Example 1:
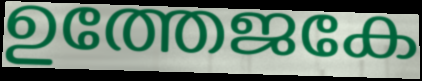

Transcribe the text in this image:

ഉത്തേജകേ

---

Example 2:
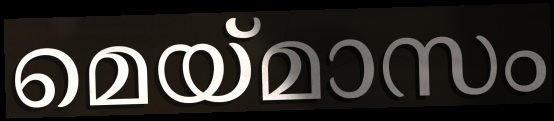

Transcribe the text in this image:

മെയ്മാസം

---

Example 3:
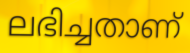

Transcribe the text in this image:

ലഭിച്ചതാണ്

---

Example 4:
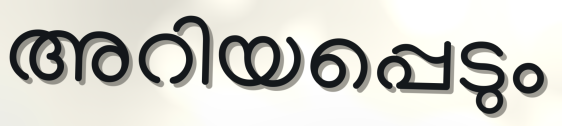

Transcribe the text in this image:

അറിയപ്പെടും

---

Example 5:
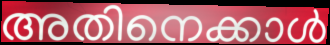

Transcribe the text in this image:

അതിനെക്കാൾ